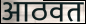
आठवत